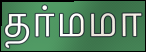
தர்மமா